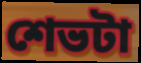
শেভটা